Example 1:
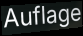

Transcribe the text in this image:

Auflage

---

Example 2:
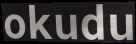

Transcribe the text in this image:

okudu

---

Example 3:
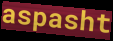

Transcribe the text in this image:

aspasht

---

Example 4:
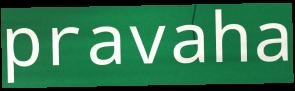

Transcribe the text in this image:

pravaha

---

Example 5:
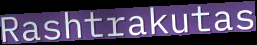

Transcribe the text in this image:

Rashtrakutas